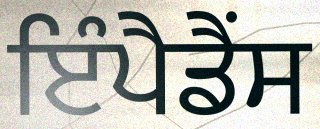
ਇੰਪੈਡੈਂਸ